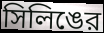
সিলিঙের